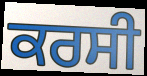
ਕਰਸੀ